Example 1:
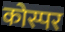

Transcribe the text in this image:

कोस्पर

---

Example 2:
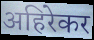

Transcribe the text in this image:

अहिरेकर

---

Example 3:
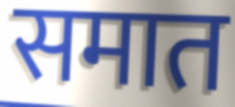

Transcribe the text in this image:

समात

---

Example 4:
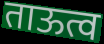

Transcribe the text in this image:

ताऊत्व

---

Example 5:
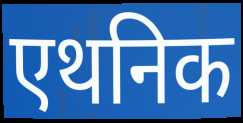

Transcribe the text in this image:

एथनिक